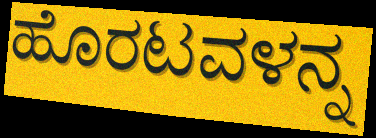
ಹೊರಟವಳನ್ನ